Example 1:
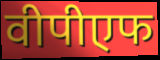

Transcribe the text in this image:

वीपीएफ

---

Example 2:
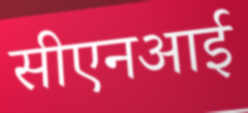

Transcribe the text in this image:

सीएनआई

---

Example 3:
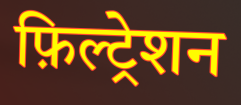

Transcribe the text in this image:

फ़िल्ट्रेशन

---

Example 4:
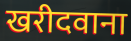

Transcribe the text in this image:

खरीदवाना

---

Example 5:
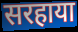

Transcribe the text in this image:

सरहाया